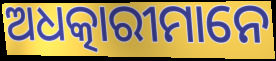
ଅଧତ୍କାରୀମାନେ